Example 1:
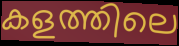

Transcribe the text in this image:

കളത്തിലെ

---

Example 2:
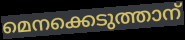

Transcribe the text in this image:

മെനക്കെടുത്താന്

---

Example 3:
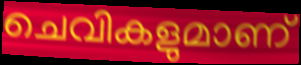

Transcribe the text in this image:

ചെവികളുമാണ്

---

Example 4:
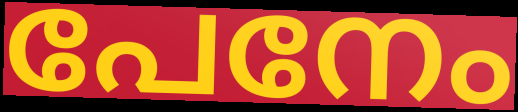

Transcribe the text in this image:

പേനേം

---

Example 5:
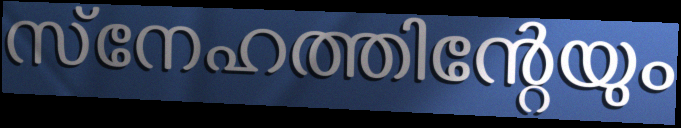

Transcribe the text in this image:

സ്‌നേഹത്തിന്റേയും